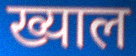
ख्याल